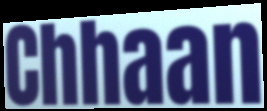
Chhaan